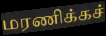
மரணிக்கச்